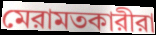
মেরামতকারীরা